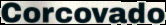
Corcovado